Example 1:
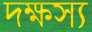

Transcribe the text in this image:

দক্ষস্য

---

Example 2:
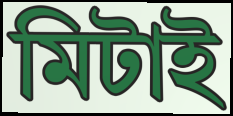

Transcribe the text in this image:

মিটাই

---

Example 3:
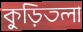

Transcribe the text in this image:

কুড়িতলা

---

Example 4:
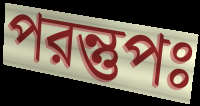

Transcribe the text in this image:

পরন্তুপঃ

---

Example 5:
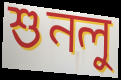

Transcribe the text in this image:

শুনলু